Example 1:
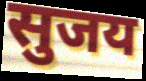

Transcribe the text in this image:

सुजय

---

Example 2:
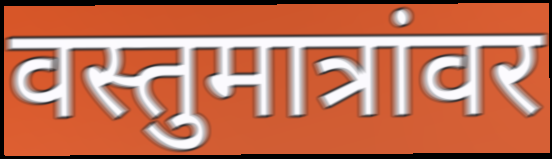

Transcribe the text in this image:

वस्तुमात्रांवर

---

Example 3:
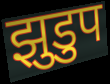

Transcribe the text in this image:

झुडुप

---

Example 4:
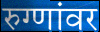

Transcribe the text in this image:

रुग्णांवर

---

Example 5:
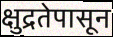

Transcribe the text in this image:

क्षुद्रतेपासून